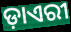
ଡ଼ାଏରୀ